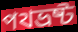
পথভ্ৰষ্ট